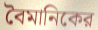
বৈমানিকের